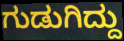
ಗುಡುಗಿದ್ದು